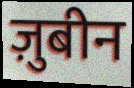
ज़ुबीन